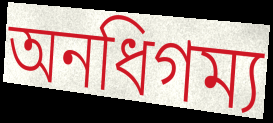
অনধিগম্য